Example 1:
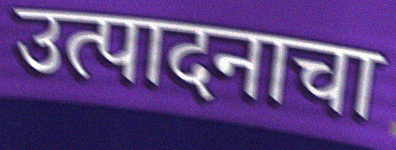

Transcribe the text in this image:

उत्पादनाचा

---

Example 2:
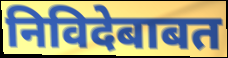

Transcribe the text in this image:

निविदेबाबत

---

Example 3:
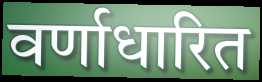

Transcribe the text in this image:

वर्णाधारित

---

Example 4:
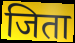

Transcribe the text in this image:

जिता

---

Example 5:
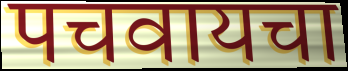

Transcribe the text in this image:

पचवायचा